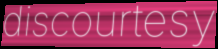
discourtesy